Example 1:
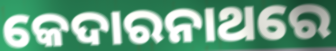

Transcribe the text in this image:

କେଦାରନାଥରେ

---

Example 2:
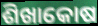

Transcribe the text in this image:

ଶିଖାକୋଷ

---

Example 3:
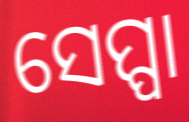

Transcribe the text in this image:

ସେପ୍ପା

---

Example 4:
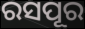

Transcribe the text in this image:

ରସପୂର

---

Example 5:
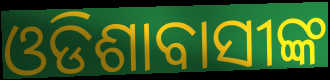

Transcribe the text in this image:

ଓଡିଶାବାସୀଙ୍କ